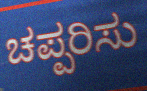
ಚಪ್ಪರಿಸು